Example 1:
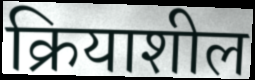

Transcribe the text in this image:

क्रियाशील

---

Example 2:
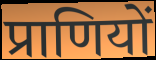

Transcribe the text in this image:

प्राणियों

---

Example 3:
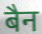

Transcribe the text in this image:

बैन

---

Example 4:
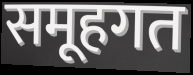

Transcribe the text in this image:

समूहगत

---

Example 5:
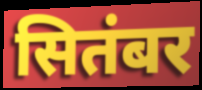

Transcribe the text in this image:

सितंबर